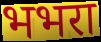
भभरा